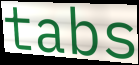
tabs